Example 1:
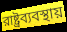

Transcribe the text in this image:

রাষ্ট্রব্যবস্থায়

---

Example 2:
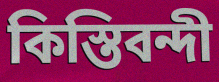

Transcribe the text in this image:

কিস্তিবন্দী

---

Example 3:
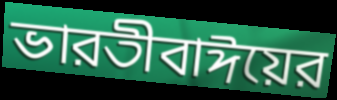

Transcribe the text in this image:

ভারতীবাঈয়ের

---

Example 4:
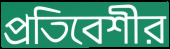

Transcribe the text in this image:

প্রতিবেশীর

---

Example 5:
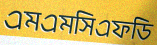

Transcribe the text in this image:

এমএমসিএফডি